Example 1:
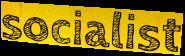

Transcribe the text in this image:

socialist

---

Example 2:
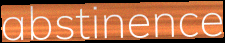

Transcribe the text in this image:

abstinence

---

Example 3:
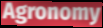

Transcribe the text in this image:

Agronomy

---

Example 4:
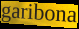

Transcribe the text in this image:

garibona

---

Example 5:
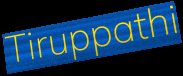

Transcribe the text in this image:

Tiruppathi